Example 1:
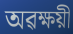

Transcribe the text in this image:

অৱক্ষয়ী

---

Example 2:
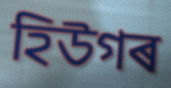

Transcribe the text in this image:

হিউগৰ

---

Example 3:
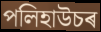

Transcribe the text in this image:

পলিহাউচৰ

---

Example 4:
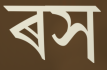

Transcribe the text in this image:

ৰস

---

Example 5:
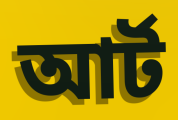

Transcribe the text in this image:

আৰ্ট